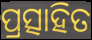
ପ୍ରତ୍ସାହିତ